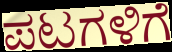
ಪಟಗಳಿಗೆ